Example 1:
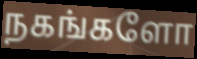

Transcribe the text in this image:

நகங்களோ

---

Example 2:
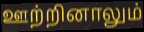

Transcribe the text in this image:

ஊற்றினாலும்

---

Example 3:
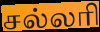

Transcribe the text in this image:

சல்லரி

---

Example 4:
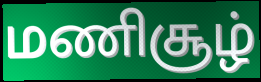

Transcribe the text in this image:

மணிசூழ்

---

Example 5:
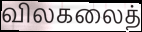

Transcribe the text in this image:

விலகலைத்